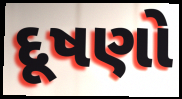
દૂષણો